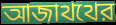
আজাথথের